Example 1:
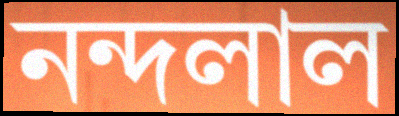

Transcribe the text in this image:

নন্দলাল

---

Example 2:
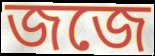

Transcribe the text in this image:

জজে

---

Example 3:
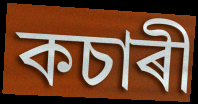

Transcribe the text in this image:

কচাৰী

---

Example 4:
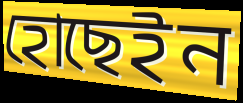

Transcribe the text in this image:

হোছেইন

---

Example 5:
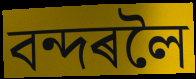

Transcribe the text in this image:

বন্দৰলৈ